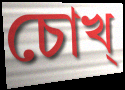
চোখ্